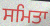
ਸਮਿਤਾ